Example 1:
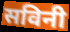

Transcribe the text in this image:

सविनी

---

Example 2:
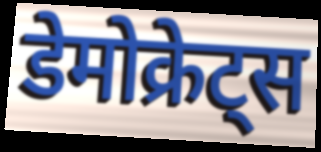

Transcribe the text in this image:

डेमोक्रेट्स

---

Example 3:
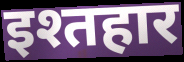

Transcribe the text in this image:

इश्तहार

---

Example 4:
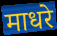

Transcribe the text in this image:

माधरे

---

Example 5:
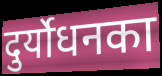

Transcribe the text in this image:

दुर्योधनका